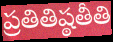
ప్రతితిష్ఠతీతి